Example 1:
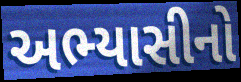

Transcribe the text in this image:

અભ્યાસીનો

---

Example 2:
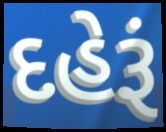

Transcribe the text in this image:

દહેરૂં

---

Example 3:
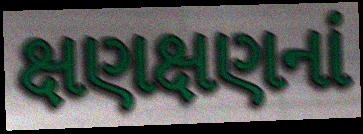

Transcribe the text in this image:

ક્ષણક્ષણનાં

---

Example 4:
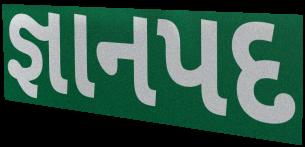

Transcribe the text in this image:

જ્ઞાનપદ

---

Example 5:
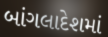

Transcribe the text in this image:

બાંગલાદેશમાં